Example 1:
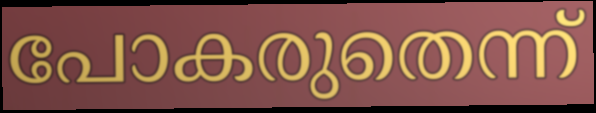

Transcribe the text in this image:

പോകരുതെന്ന്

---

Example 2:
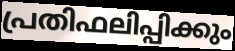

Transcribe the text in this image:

പ്രതിഫലിപ്പിക്കും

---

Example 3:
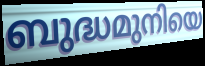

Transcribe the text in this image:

ബുദ്ധമുനിയെ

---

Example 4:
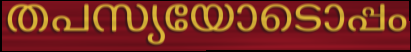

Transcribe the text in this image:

തപസ്യയോടൊപ്പം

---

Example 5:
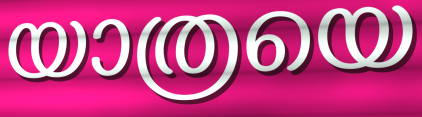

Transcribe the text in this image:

യാത്രയെ